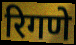
रिगणे